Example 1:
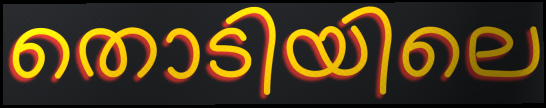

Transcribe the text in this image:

തൊടിയിലെ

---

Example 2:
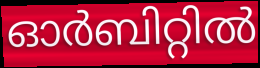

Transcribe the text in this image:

ഓർബിറ്റിൽ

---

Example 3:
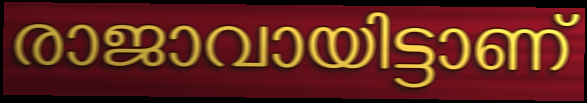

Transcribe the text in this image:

രാജാവായിട്ടാണ്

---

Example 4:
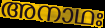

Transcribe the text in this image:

അനാഥഃ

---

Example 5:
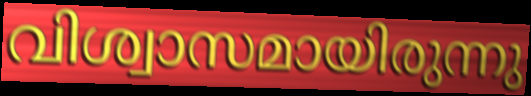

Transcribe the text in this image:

വിശ്വാസമായിരുന്നു